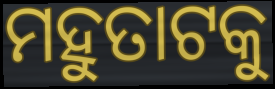
ମହୁତାଟକୁ